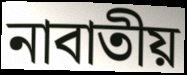
নাবাতীয়